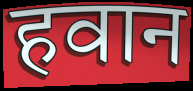
हवान